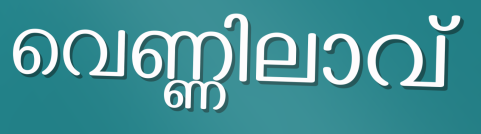
വെണ്ണിലാവ്